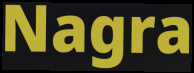
Nagra